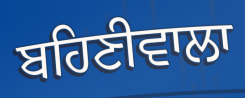
ਬਹਿਣੀਵਾਲਾ